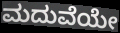
ಮದುವೆಯೇ